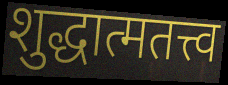
शुद्धात्मतत्त्व